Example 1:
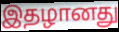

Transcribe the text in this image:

இதழானது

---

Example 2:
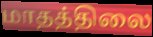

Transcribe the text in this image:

மாதத்திலை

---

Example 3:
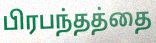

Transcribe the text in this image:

பிரபந்தத்தை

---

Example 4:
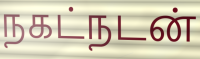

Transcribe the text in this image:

நகட்நடன்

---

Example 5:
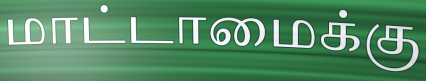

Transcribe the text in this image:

மாட்டாமைக்கு